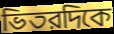
ভিতরদিকে